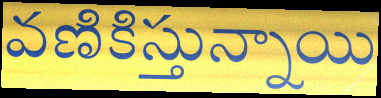
వణికిస్తున్నాయి